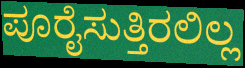
ಪೂರೈಸುತ್ತಿರಲಿಲ್ಲ